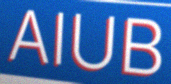
AIUB